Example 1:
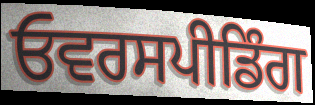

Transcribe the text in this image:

ਓਵਰਸਪੀਡਿੰਗ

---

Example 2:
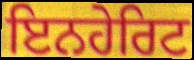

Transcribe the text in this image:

ਇਨਹੇਰਿਟ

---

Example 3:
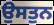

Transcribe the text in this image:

ਉਸਤੁਨ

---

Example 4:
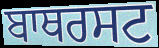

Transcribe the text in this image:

ਬਾਥਰਸਟ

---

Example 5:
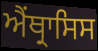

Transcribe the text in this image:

ਐਂਥ੍ਰਾਸਿਸ